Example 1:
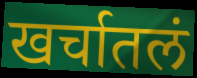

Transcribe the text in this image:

खर्चातलं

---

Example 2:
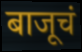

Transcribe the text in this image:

बाजूचं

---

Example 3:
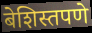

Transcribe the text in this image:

बेशिस्तपणे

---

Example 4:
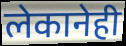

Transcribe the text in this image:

लेकानेही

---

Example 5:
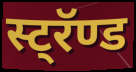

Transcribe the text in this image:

स्ट्रॅण्ड